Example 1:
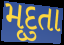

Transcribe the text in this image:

મૃદુતા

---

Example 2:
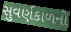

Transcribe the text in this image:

સુવર્ણકાળનો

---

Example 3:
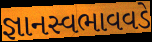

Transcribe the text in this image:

જ્ઞાનસ્વભાવવડે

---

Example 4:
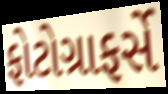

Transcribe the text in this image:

ફોટોગ્રાફર્સે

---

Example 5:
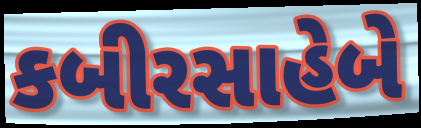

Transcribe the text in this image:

કબીરસાહેબે